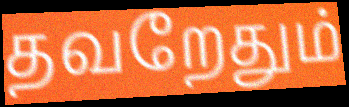
தவறேதும்